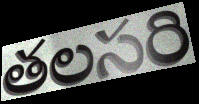
తలసరి